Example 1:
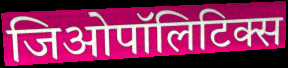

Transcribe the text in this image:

जिओपॉलिटिक्स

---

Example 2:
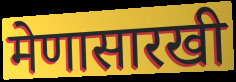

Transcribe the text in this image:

मेणासारखी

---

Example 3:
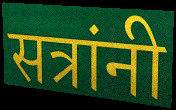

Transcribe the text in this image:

सत्रांनी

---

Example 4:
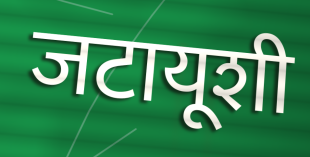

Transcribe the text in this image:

जटायूशी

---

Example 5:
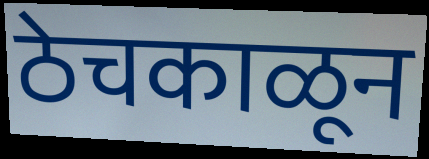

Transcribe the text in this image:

ठेचकाळून